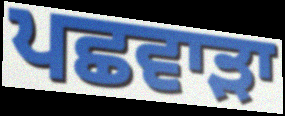
ਪਛਵਾੜਾ